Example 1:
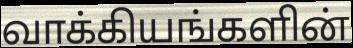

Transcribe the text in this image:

வாக்கியங்களின்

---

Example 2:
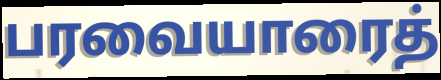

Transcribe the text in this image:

பரவையாரைத்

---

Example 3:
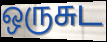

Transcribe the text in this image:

ஒருசுட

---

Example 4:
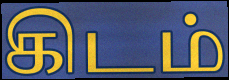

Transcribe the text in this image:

கிடம்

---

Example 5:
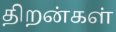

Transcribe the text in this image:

திறன்கள்